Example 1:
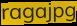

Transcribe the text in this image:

ragajpg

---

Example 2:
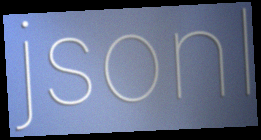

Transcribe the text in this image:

jsonl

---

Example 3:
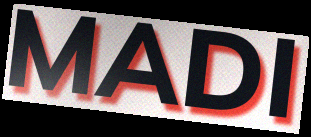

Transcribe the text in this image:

MADI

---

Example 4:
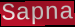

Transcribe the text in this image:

Sapna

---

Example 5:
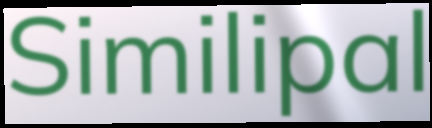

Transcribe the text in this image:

Similipal